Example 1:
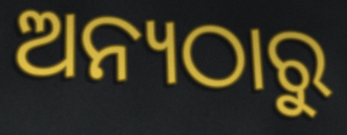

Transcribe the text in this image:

ଅନ୍ୟଠାରୁ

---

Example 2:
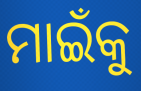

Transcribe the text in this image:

ମାଇଁକୁ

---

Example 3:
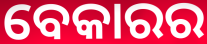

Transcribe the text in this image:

ବେକାରର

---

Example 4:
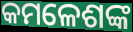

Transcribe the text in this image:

କମଳେଶଙ୍କ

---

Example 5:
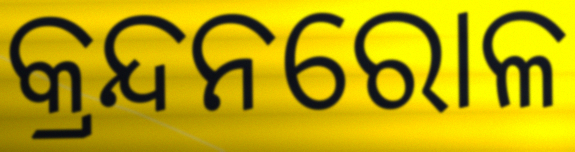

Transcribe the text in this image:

କ୍ରନ୍ଦନରୋଳ